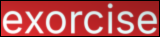
exorcise